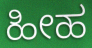
ಹೀಹ